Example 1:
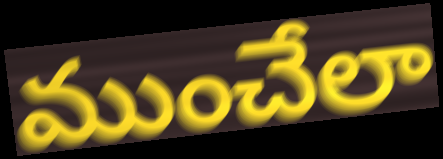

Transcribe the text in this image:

ముంచేలా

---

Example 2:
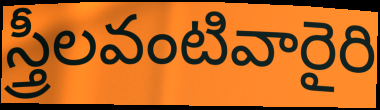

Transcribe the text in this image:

స్త్రీలవంటివారైరి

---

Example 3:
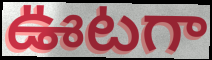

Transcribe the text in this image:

ఊటగా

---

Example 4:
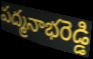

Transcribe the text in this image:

పద్మనాభరెడ్డి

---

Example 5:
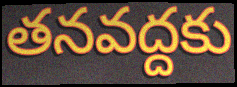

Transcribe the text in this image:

తనవద్దకు